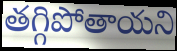
తగ్గిపోతాయని